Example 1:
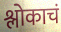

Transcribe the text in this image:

श्लोकाचं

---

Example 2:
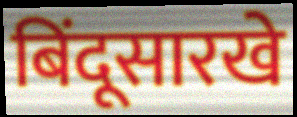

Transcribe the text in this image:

बिंदूसारखे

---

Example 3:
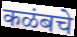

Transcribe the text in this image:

कळंबचे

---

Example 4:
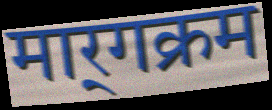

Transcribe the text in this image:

मार्गक्रम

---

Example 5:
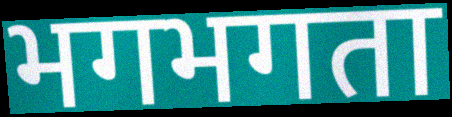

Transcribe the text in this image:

भगभगता